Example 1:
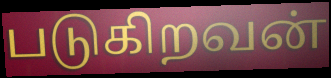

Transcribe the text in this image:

படுகிறவன்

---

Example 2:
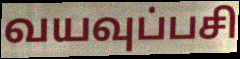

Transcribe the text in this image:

வயவுப்பசி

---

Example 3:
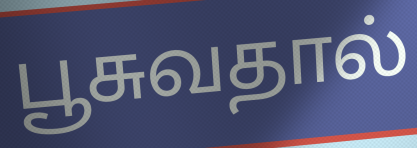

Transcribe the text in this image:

பூசுவதால்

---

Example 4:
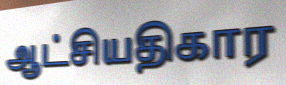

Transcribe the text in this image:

ஆட்சியதிகார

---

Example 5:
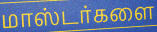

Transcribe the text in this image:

மாஸ்டர்களை